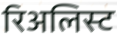
रिअलिस्ट